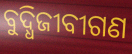
ବୁଦ୍ଧିଜୀବୀଗଣ